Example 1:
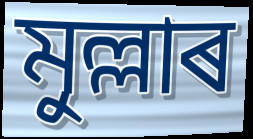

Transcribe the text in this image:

মুল্লাৰ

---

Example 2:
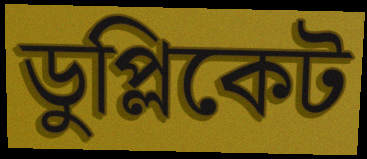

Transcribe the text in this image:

ডুপ্লিকেট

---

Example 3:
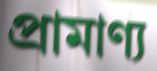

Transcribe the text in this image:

প্ৰামাণ্য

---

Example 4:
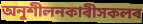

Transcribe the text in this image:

অনুশীলনকাৰীসকলৰ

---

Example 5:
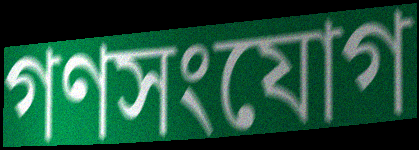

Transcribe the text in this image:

গণসংযোগ